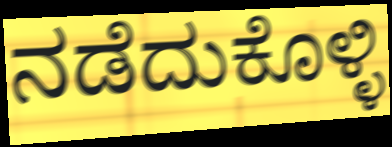
ನಡೆದುಕೊಳ್ಳಿ